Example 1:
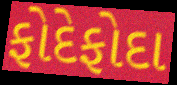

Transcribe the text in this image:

ફોદેફોદા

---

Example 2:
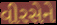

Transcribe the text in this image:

વીરસેને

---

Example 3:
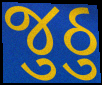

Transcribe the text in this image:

જુઠુ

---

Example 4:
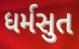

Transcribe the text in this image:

ધર્મસુત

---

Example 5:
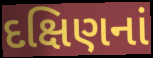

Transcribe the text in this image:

દક્ષિણનાં